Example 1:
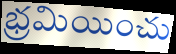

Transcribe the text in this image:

భ్రమియించు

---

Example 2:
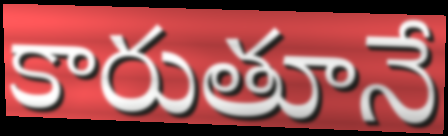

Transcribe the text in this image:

కారుతూనే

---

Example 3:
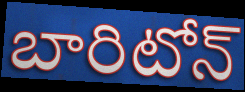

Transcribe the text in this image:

బారిటోన్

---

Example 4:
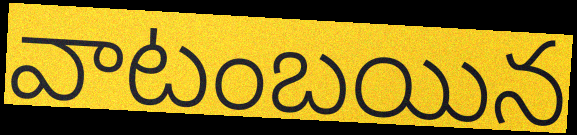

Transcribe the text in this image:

వాటంబయిన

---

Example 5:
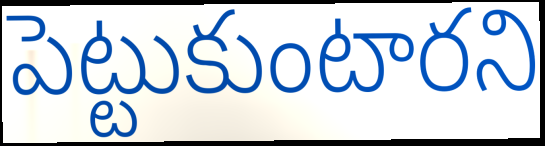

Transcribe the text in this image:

పెట్టుకుంటారని